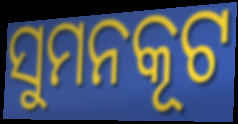
ସୁମନକୂଟ